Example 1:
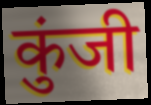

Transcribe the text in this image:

कुंजी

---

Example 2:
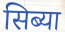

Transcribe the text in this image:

सिब्या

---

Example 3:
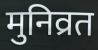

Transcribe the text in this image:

मुनिव्रत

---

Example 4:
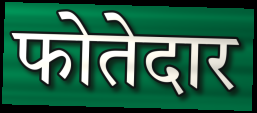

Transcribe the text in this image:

फोतेदार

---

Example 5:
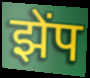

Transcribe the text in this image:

झेंप